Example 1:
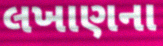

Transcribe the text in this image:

લખાણના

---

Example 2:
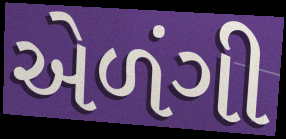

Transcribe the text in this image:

એળંગી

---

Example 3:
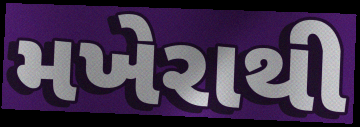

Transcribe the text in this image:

મખેરાથી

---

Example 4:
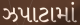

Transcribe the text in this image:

ઝપાટામાં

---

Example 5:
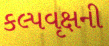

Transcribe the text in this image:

કલ્પવૃક્ષની